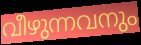
വീഴുന്നവനും